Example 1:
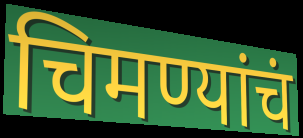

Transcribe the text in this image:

चिमण्यांचं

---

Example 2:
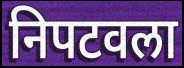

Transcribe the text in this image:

निपटवला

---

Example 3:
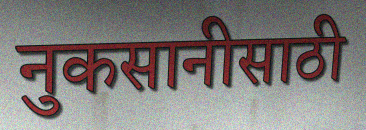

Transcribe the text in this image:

नुकसानीसाठी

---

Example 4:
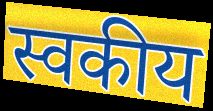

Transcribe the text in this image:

स्वकीय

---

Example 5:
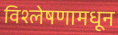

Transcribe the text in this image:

विश्लेषणामधून